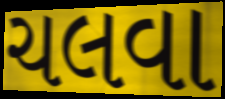
ચલવા